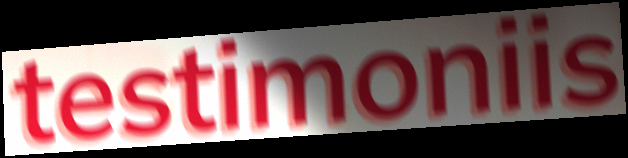
testimoniis